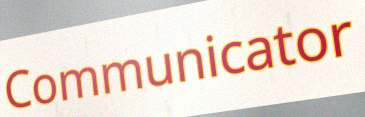
Communicator